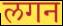
लगन